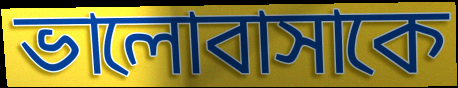
ভালোবাসাকে